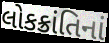
લોકક્રાંતિનાં